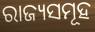
ରାଜ୍ୟସମୂହ